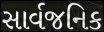
સાર્વજનિક